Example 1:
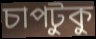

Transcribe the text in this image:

চাপটুকু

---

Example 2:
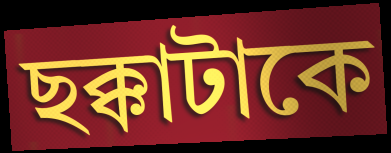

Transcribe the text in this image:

ছক্কাটাকে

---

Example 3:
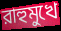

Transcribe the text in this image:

রাহুমুখে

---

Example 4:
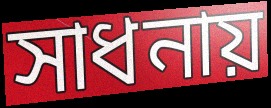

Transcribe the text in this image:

সাধনায়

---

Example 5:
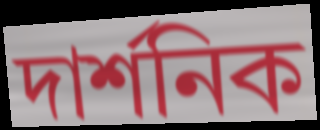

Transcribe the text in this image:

দার্শনিক